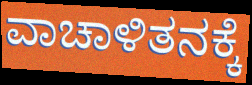
ವಾಚಾಳಿತನಕ್ಕೆ